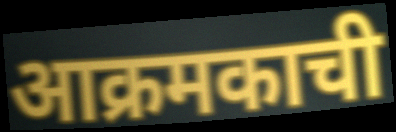
आक्रमकाची